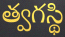
త్వగస్థి